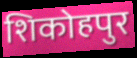
शिकोहपुर